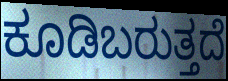
ಕೂಡಿಬರುತ್ತದೆ